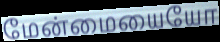
மேன்மையையோ